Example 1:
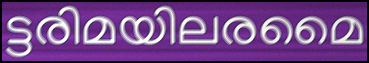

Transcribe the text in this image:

ട്ടരിമയിലരമൈ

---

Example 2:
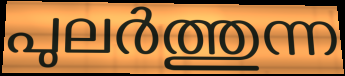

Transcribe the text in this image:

പുലർത്തുന്ന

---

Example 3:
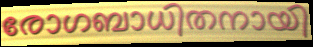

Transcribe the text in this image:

രോഗബാധിതനായി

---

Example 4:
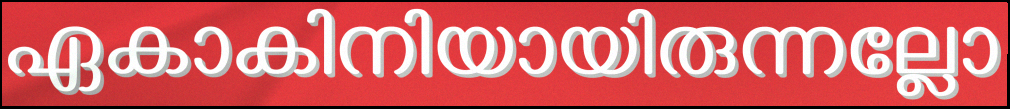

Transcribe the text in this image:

ഏകാകിനിയായിരുന്നല്ലോ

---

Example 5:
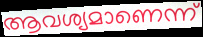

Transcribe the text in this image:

ആവശ്യമാണെന്ന്